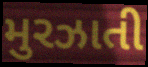
મુરઝાતી